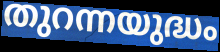
തുറന്നയുദ്ധം